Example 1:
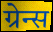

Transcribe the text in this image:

ग्रेन्स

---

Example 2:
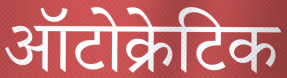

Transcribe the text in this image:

ऑटोक्रेटिक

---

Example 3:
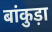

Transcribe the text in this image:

बांकुड़ा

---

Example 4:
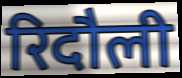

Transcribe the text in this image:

रिदौली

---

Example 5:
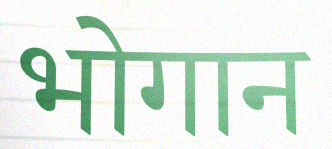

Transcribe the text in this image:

भोगान